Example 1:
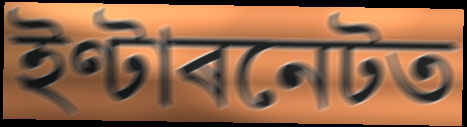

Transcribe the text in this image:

ইণ্টাৰনেটত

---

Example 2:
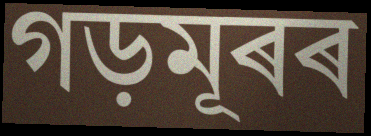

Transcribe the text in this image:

গড়মূৰৰ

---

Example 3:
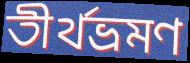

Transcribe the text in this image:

তীৰ্থভ্ৰমণ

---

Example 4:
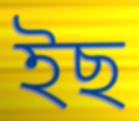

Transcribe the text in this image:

ইছ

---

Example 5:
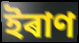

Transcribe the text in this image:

ইৰাণ